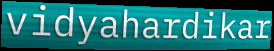
vidyahardikar